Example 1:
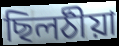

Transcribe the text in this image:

ছিলঠীয়া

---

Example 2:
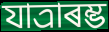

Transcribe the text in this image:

যাত্ৰাৰম্ভ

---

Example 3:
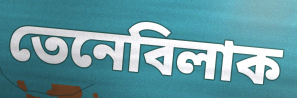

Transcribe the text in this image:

তেনেবিলাক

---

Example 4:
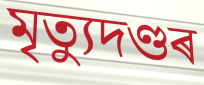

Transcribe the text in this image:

মৃত্যুদণ্ডৰ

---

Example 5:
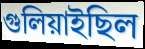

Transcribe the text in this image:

গুলিয়াইছিল